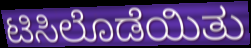
ಟಿಸಿಲೊಡೆಯಿತು